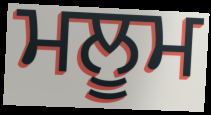
ਮਲੂਮ